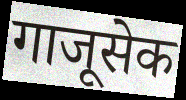
गाजूसेक